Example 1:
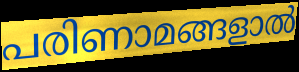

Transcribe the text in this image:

പരിണാമങ്ങളാൽ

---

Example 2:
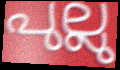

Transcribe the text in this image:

പുല്ലു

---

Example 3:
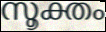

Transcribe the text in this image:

സൂക്തം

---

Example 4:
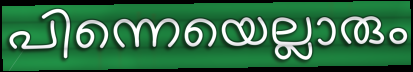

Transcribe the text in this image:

പിന്നെയെല്ലാരും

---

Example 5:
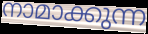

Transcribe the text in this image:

നാമാക്കുന്ന